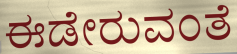
ಈಡೇರುವಂತೆ